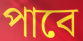
পাবে